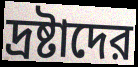
দ্রষ্টাদের